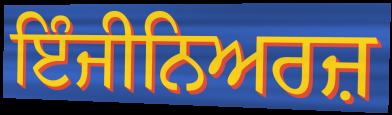
ਇੰਜੀਨਿਅਰਜ਼